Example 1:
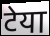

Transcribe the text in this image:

टेया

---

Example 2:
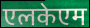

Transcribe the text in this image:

एलकेएम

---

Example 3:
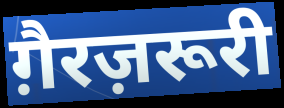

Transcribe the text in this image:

ग़ैरज़रूरी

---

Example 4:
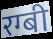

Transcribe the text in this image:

रग्बी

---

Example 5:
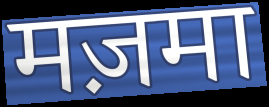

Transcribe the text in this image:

मज़मा